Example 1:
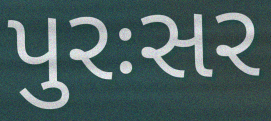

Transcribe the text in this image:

પુરઃસર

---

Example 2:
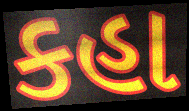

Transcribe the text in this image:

કહા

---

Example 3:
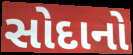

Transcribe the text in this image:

સોદાનો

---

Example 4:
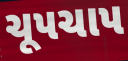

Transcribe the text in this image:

ચૂપચાપ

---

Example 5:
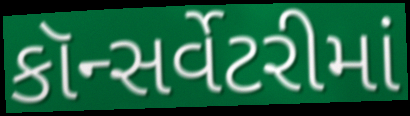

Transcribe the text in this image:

કૉન્સર્વેટરીમાં